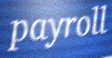
payroll